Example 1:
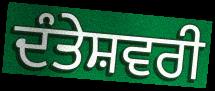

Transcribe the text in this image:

ਦੰਤੇਸ਼ਵਰੀ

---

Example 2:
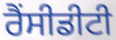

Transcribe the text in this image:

ਰੈਂਸੀਡੀਟੀ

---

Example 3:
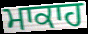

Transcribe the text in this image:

ਮਾਕਾਹ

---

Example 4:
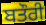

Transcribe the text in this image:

ਬਤੌਰੀ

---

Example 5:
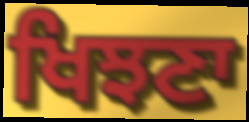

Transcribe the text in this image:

ਖਿਝਣਾ